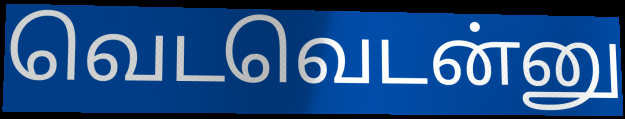
வெடவெடன்னு